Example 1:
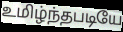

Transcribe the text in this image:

உமிழ்ந்தபடியே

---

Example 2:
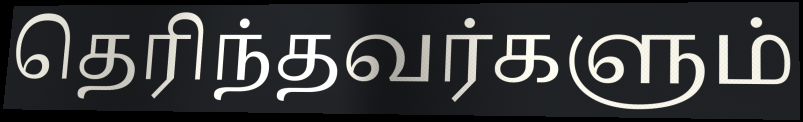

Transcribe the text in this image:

தெரிந்தவர்களும்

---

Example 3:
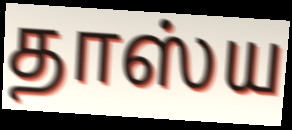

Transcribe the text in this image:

தாஸ்ய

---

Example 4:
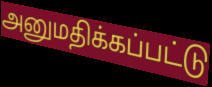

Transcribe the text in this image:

அனுமதிக்கப்பட்டு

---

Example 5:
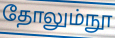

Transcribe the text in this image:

தோலும்நூ